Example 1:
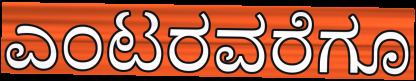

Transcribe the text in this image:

ಎಂಟರವರೆಗೂ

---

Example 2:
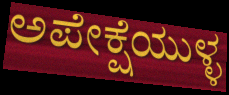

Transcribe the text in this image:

ಅಪೇಕ್ಷೆಯುಳ್ಳ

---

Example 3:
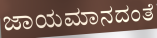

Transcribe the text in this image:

ಜಾಯಮಾನದಂತೆ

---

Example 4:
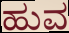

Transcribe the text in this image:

ಹುವ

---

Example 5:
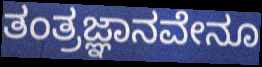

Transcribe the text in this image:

ತಂತ್ರಜ್ಞಾನವೇನೂ